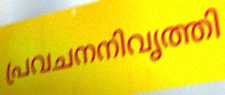
പ്രവചനനിവൃത്തി